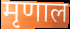
मृणाल